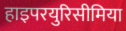
हाइपरयुरिसीमिया